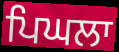
ਪਿਘਲਾ